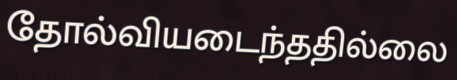
தோல்வியடைந்ததில்லை